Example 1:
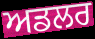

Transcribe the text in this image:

ਅਡਲਰ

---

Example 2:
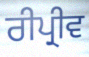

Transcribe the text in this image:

ਰੀਪ੍ਰੀਵ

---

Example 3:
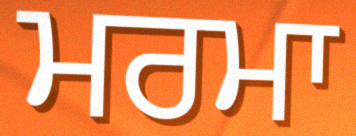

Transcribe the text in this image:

ਮਰਮਾ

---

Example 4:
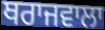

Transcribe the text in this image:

ਥਰਾਜਵਾਲਾ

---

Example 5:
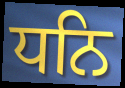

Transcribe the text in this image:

ਧਨਿ